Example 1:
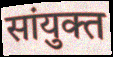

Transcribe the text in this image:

सांयुक्त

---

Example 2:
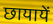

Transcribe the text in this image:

छायायें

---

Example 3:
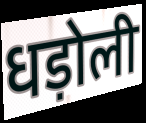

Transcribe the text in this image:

धड़ोली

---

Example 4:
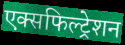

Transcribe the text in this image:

एक्सफिल्ट्रेशन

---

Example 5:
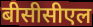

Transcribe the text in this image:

बीसीसीएल